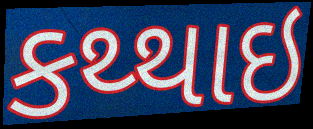
કથ્થાઇ